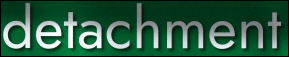
detachment